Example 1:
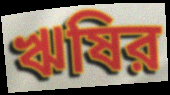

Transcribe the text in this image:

ঋষির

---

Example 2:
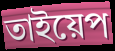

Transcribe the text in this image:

তাইয়েপ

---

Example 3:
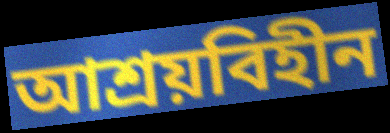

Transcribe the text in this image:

আশ্রয়বিহীন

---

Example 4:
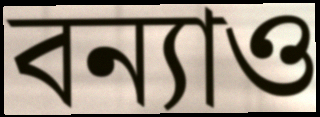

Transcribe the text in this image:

বন্যাও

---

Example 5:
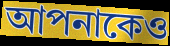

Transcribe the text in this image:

আপনাকেও